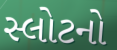
સ્લોટનો